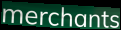
merchants